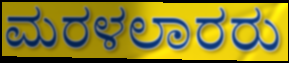
ಮರಳಲಾರರು